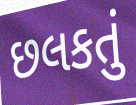
છલકતું